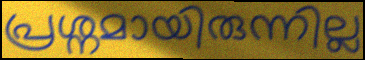
പ്രശ്നമായിരുന്നില്ല